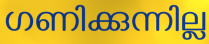
ഗണിക്കുന്നില്ല